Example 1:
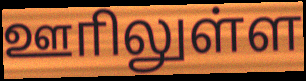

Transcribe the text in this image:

ஊரிலுள்ள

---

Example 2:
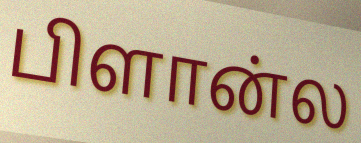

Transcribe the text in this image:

பிளான்ல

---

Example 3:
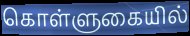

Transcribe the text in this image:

கொள்ளுகையில்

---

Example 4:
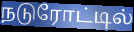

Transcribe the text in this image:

நடுரோட்டில்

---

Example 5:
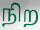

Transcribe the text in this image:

நிற